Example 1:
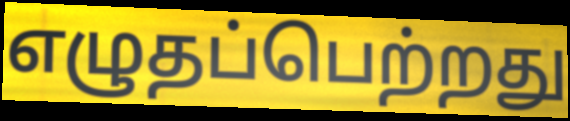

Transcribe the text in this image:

எழுதப்பெற்றது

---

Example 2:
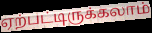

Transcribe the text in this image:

ஏற்பட்டிருக்கலாம்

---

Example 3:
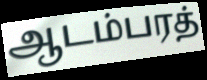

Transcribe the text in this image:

ஆடம்பரத்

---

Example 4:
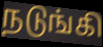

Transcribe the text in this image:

நடுங்கி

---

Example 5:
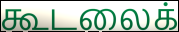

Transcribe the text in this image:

கூடலைக்